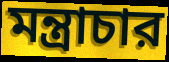
মন্ত্রাচার